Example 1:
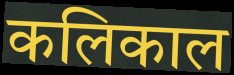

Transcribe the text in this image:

कलिकाल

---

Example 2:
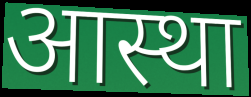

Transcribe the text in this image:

आस्था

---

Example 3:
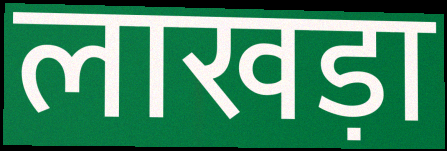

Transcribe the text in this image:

लाखड़ा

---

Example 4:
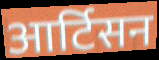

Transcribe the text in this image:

आर्टिसन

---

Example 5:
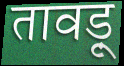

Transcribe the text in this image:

तावड़ू